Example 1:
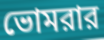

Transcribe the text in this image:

ভোমরার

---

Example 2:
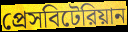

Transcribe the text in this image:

প্রেসবিটেরিয়ান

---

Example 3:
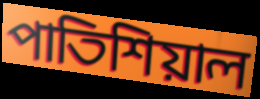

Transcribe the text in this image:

পাতিশিয়াল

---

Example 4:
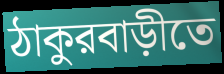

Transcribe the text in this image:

ঠাকুরবাড়ীতে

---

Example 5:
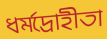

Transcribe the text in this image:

ধর্মদ্রোহীতা